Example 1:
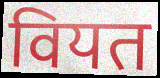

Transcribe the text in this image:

वियत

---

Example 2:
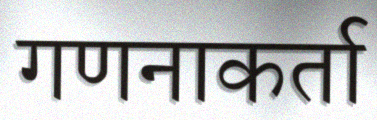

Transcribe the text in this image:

गणनाकर्ता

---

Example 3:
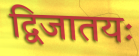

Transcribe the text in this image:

द्विजातयः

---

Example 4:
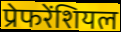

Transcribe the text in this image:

प्रेफरेंशियल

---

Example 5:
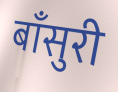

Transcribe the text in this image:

बाँसुरी